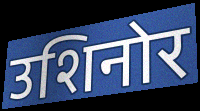
उशिनोर